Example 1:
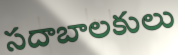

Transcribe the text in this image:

సదాబాలకులు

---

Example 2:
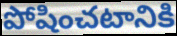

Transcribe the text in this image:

పోషించటానికి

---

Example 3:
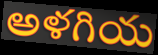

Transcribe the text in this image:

అళగియ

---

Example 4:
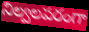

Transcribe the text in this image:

నిల్వలపరంగా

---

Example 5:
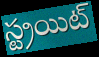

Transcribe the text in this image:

స్ట్రయిట్